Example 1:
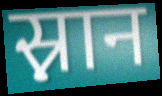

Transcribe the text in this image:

स्नान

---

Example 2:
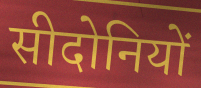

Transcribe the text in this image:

सीदोनियों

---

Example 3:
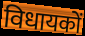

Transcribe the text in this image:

विधायकों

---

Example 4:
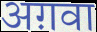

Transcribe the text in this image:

अग़वा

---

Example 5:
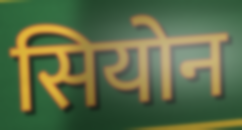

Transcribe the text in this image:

सियोन